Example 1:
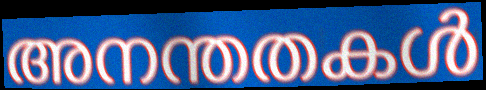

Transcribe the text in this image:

അനന്തതകൾ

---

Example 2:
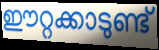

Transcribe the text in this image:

ഈറ്റക്കാടുണ്ട്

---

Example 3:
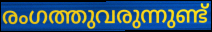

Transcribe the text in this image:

രംഗത്തുവരുന്നുണ്ട്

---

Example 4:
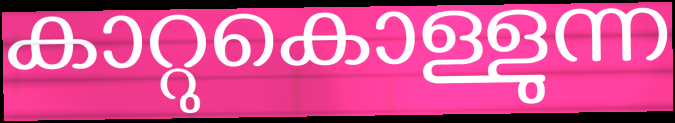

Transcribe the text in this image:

കാറ്റുകൊള്ളുന്ന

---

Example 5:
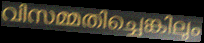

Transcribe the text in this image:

വിസമ്മതിച്ചെങ്കിലും